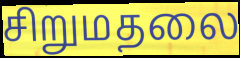
சிறுமதலை